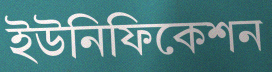
ইউনিফিকেশন